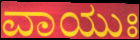
ವಾಯುಃ